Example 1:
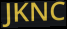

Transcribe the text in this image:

JKNC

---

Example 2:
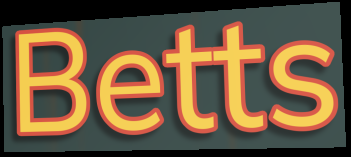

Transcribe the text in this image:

Betts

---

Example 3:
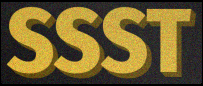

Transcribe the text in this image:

SSST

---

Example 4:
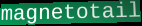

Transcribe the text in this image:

magnetotail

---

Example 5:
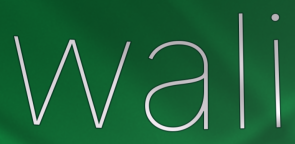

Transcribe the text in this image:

wali